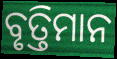
ବୃତ୍ତିମାନ